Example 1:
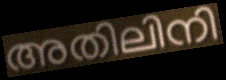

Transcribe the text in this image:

അതിലിനി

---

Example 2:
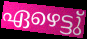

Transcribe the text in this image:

ഏഴെട്ടു്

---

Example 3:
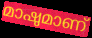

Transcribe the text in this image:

മാഷുമാണ്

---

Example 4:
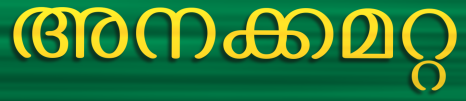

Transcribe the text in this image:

അനക്കമറ്റ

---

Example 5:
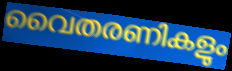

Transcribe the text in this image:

വൈതരണികളും